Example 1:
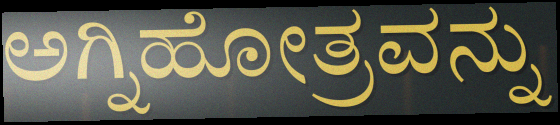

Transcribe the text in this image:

ಅಗ್ನಿಹೋತ್ರವನ್ನು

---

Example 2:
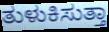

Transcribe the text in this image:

ತುಳುಕಿಸುತ್ತಾ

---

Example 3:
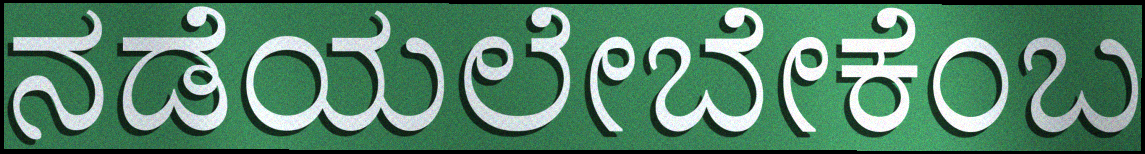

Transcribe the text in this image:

ನಡೆಯಲೇಬೇಕೆಂಬ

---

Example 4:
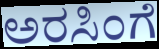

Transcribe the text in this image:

ಅರಸಿಂಗೆ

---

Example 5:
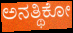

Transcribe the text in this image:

ಅನತ್ಥಿಕೋ